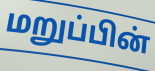
மறுப்பின்